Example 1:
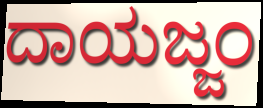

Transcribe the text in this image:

ದಾಯಜ್ಜಂ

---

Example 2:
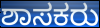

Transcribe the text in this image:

ಶಾಸಕರು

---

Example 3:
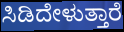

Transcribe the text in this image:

ಸಿಡಿದೇಳುತ್ತಾರೆ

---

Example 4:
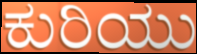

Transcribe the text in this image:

ಕುರಿಯು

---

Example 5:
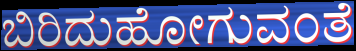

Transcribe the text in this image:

ಬಿರಿದುಹೋಗುವಂತೆ